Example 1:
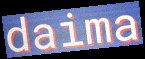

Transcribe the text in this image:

daima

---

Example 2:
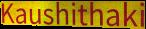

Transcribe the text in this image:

Kaushithaki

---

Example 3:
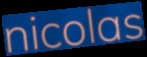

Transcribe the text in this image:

nicolas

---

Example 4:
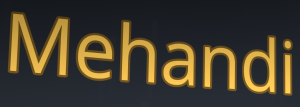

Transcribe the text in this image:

Mehandi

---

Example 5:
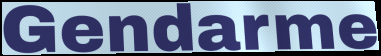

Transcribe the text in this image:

Gendarme